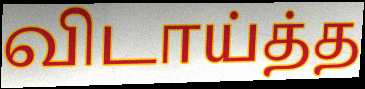
விடாய்த்த